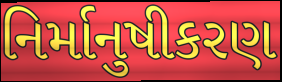
નિર્માનુષીકરણ